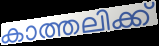
കാത്തലിക്ക്